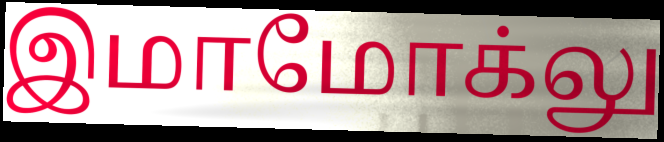
இமாமோக்லு